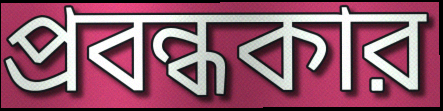
প্রবন্ধকার